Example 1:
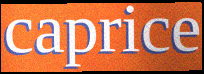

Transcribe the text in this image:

caprice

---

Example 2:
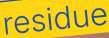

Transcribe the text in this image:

residue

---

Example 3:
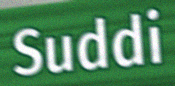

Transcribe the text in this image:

Suddi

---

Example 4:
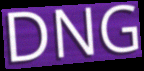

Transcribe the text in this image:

DNG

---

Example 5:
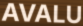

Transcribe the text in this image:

AVALU